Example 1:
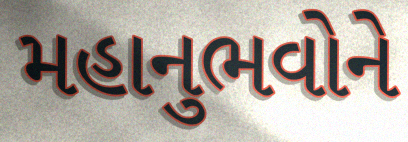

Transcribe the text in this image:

મહાનુભવોને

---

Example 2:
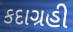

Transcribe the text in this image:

કદાગ્રહી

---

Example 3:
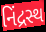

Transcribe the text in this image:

નિંદ્રસ્થ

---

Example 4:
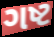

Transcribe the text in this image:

ગષ્ટ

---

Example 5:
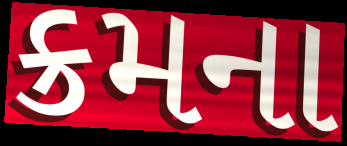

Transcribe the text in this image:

ક્રમના